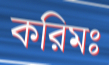
করিমঃ